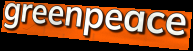
greenpeace